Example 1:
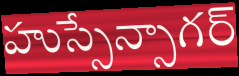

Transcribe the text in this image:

హుస్సేన్సాగర్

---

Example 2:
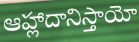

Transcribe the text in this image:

ఆహ్లాదానిస్తాయో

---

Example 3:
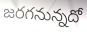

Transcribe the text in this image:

జరగనున్నదో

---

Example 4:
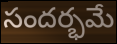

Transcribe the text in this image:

సందర్భమే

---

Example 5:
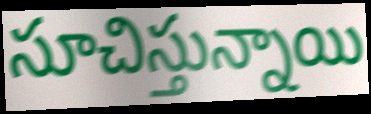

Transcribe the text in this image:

సూచిస్తున్నాయి